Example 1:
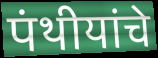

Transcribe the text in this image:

पंथीयांचे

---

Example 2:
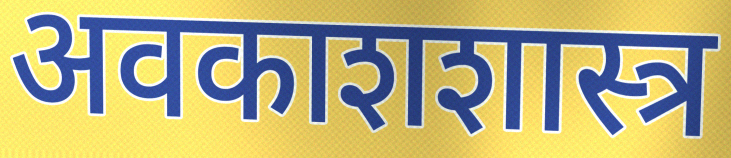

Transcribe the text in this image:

अवकाशशास्त्र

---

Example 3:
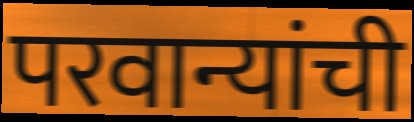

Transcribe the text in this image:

परवान्यांची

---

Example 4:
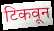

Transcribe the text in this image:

टिकवून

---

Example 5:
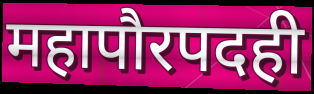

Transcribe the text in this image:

महापौरपदही